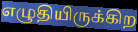
எழுதியிருக்கிற